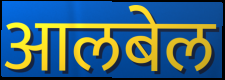
आलबेल